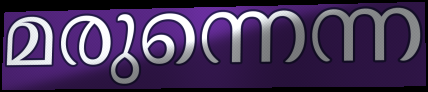
മരുന്നെന്ന